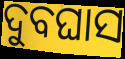
ଦୁବଘାସ